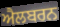
ਐਲਬਰਨ